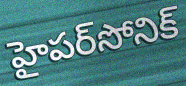
హైపర్‌సోనిక్